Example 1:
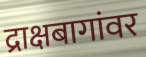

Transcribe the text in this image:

द्राक्षबागांवर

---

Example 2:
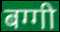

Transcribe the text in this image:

बग्गी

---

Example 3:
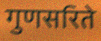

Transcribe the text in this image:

गुणसरिते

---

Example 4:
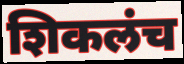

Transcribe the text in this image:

शिकलंच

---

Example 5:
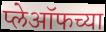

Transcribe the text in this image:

प्लेऑफच्या